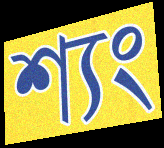
শ্যং